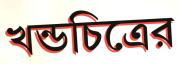
খন্ডচিত্রের